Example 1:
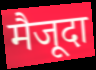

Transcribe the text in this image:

मैजूदा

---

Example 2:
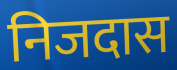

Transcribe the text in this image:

निजदास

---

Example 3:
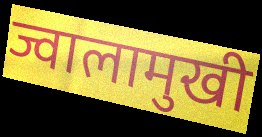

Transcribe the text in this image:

ज्वालामुखी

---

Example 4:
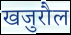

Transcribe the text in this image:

खजुरौल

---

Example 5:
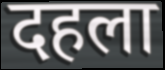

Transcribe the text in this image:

दहला